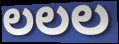
ಲಲಲ